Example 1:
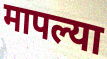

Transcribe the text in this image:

मापल्या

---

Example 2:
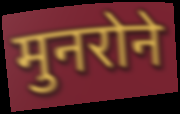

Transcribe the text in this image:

मुनरोने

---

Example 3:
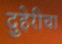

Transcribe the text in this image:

दुहेरीचा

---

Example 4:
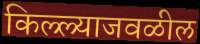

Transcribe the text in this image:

किल्ल्याजवळील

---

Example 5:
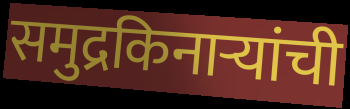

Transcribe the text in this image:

समुद्रकिनाऱ्यांची